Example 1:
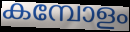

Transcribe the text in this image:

കമ്പോളം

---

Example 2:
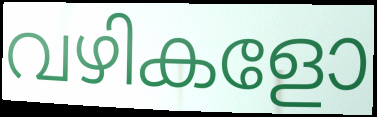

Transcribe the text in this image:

വഴികളോ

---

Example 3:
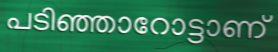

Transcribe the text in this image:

പടിഞ്ഞാറോട്ടാണ്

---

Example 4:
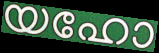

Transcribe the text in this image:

യഹോ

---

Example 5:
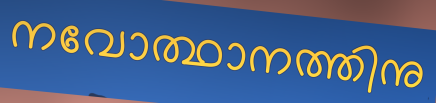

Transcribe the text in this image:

നവോത്ഥാനത്തിനു